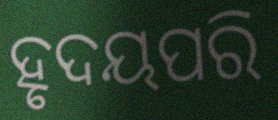
ହୃଦୟପରି